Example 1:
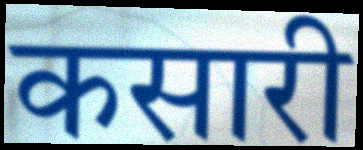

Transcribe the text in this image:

कसारी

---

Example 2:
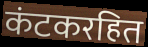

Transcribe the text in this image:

कंटकरहित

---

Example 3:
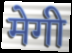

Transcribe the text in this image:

मेगी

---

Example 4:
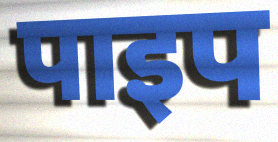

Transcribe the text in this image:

पाइप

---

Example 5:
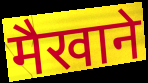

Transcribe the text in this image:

मैखाने